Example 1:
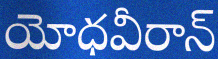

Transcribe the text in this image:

యోధవీరాన్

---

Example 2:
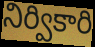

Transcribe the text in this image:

నిర్వికారి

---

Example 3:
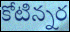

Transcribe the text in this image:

కోటిన్నర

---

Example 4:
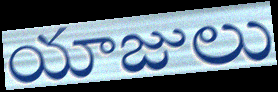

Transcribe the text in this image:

యాజులు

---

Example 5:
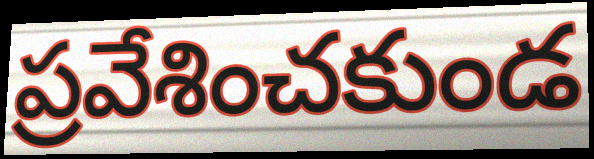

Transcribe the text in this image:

ప్రవేశించకుండ